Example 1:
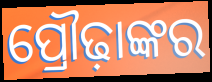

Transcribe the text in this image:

ପ୍ରୌଢ଼ାଙ୍କର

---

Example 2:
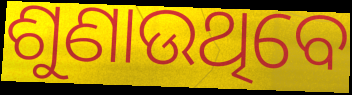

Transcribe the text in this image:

ଶୁଣାଉଥିବେ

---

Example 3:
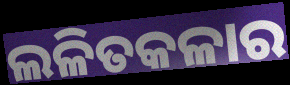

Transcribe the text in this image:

ଲଳିତକଳାର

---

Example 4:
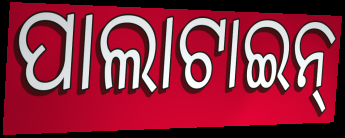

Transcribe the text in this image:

ପାଲାଟାଇନ୍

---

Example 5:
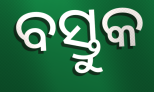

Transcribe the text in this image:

ବସ୍ତୁକ